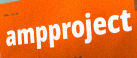
ampproject